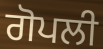
ਗੋਪਲੀ